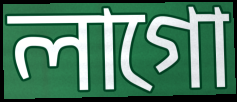
লাগো